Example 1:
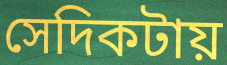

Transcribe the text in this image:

সেদিকটায়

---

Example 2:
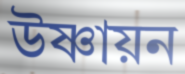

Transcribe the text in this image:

উষ্ণায়ন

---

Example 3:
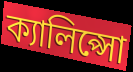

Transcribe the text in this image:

ক্যালিপ্সো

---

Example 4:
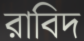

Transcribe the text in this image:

রাবিদ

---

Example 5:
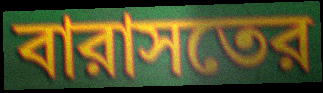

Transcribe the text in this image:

বারাসতের